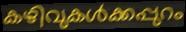
കഴിവുകൾക്കപ്പുറം